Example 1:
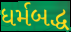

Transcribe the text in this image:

ધર્મબદ્ધ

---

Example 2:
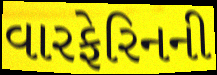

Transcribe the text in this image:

વારફેરિનની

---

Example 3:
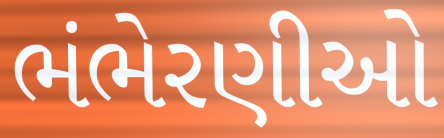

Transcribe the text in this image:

ભંભેરણીઓ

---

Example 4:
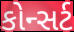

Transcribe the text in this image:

કોન્સર્ટ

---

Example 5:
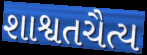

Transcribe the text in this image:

શાશ્વતચૈત્ય